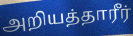
அறியத்தாரீர்